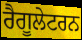
ਰੈਗੂਲੇਟਰਨ